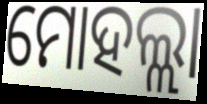
ମୋହଲ୍ଲା